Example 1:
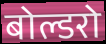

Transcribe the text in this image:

बोल्डरो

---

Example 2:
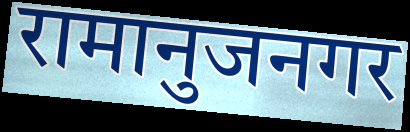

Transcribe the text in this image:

रामानुजनगर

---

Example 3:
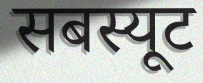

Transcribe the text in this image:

सबस्यूट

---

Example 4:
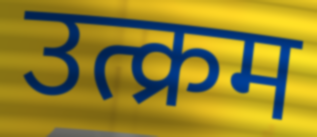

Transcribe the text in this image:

उत्क्रम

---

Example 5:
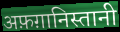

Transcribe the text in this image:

अफ़ग़ानिस्तानी